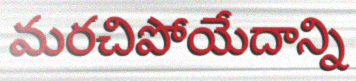
మరచిపోయేదాన్ని